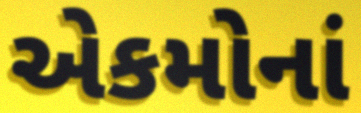
એકમોનાં